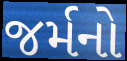
જર્મનો